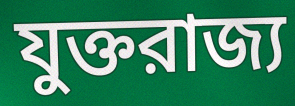
যুক্তরাজ্য